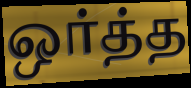
ஒர்த்த